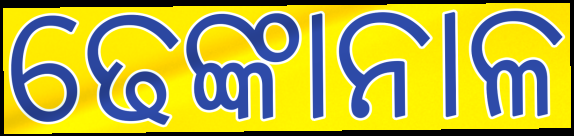
ଢେଙ୍କାନାଳ